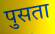
पुसता